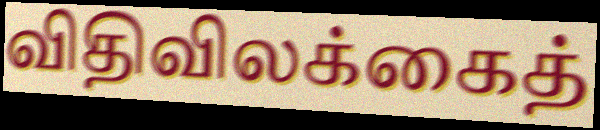
விதிவிலக்கைத்